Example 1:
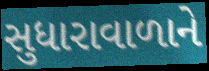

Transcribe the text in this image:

સુધારાવાળાને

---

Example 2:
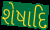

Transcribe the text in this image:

શેષાદિ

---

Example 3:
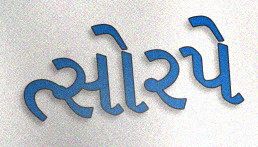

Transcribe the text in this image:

ત્સોરપે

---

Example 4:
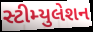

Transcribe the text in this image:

સ્ટીમ્યુલેશન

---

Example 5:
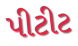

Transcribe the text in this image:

પીટીટ